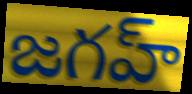
జగహ్